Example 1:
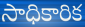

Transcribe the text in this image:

సాధికారిక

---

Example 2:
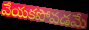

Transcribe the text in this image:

వేయకపోవడమే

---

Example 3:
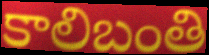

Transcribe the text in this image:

కాలిబంతి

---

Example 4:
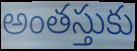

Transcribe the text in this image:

అంతస్తుకు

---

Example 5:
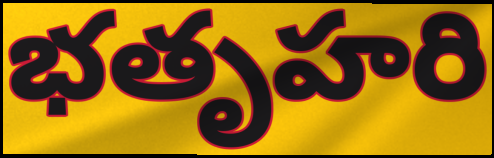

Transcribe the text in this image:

భతృహరి